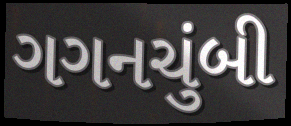
ગગનચુંબી